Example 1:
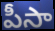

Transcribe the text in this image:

పీసా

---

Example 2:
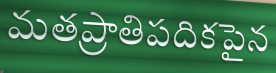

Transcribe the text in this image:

మతప్రాతిపదికపైన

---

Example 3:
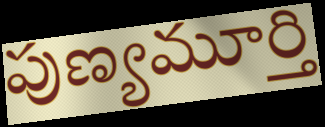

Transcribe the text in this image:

పుణ్యమూర్తి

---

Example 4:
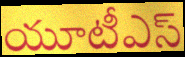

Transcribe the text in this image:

యూటీఎస్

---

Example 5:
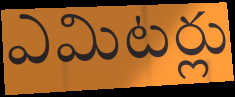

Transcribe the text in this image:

ఎమిటర్లు